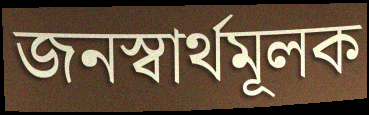
জনস্বার্থমূলক